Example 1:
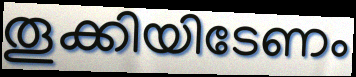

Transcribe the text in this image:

തൂക്കിയിടേണം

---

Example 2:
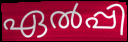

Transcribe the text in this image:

ഏൽപ്പി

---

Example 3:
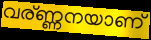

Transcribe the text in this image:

വര്ണ്ണനയാണ്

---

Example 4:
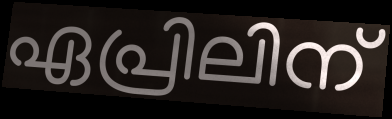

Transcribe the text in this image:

ഏപ്രിലിന്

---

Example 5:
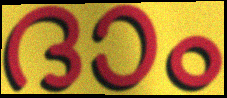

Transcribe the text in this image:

ദാം